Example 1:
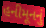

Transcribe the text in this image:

હનીમૂનનું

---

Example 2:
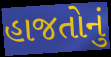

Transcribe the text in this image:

હાજતોનું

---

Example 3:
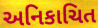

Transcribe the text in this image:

અનિકાચિત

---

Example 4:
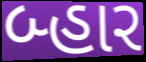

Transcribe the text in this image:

બ્હાર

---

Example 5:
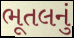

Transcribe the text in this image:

ભૂતલનું